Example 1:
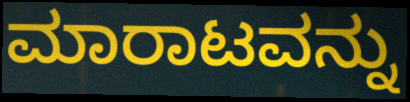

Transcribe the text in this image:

ಮಾರಾಟವನ್ನು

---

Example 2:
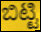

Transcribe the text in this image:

ಬಿಟ್ಟಿ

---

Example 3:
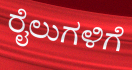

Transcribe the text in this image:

ರೈಲುಗಳಿಗೆ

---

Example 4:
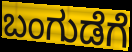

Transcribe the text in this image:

ಬಂಗುಡೆಗೆ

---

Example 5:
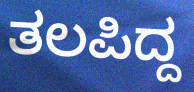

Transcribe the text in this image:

ತಲಪಿದ್ದ